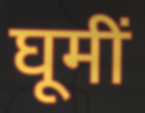
घूमीं